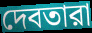
দেবতারা